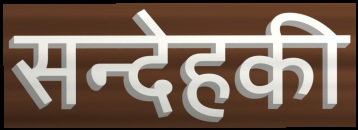
सन्देहकी